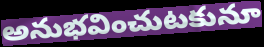
అనుభవించుటకునూ